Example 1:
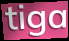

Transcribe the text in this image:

tiga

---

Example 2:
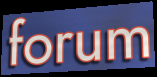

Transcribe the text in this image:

forum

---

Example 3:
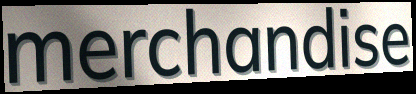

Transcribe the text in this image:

merchandise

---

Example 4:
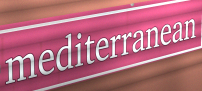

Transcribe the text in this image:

mediterranean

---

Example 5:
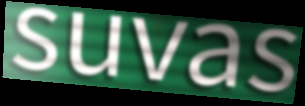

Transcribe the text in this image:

suvas